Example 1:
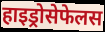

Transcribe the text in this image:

हाइड्रोसेफेलस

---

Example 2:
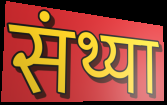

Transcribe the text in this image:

संथ्या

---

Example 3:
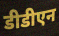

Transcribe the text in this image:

डीडीएन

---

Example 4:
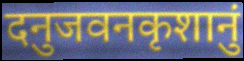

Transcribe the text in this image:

दनुजवनकृशानुं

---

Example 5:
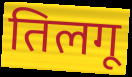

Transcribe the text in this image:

तिलगू